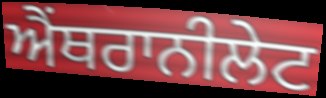
ਐਂਥਰਾਨੀਲੇਟ